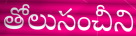
తోలుసంచీని